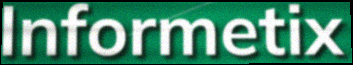
Informetix